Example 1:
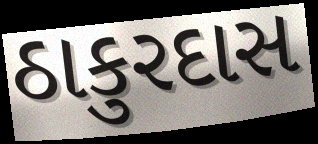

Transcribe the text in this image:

ઠાકુરદાસ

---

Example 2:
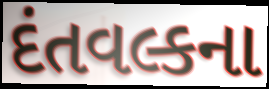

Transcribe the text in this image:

દંતવલ્કના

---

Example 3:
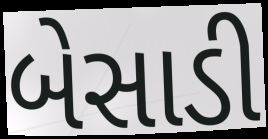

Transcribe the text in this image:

બેસાડી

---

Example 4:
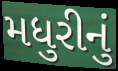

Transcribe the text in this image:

મધુરીનું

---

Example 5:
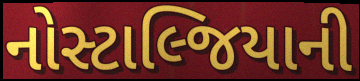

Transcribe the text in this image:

નોસ્ટાલ્જિયાની